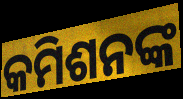
କମିଶନଙ୍କ